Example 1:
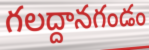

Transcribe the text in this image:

గలద్దానగండం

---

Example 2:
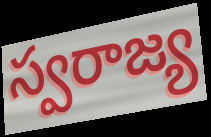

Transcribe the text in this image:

స్వరాజ్య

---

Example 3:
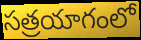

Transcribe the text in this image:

సత్రయాగంలో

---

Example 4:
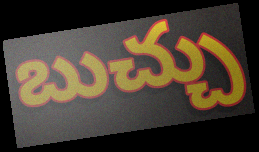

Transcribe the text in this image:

బుచ్చు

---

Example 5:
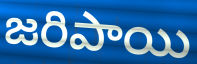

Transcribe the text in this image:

జరిపాయి